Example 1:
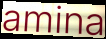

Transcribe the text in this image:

amina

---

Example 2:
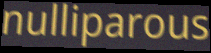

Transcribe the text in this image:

nulliparous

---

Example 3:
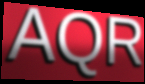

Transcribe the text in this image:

AQR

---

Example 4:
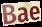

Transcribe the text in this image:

Bae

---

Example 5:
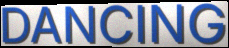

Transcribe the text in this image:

DANCING